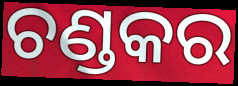
ଚଣ୍ଡକର